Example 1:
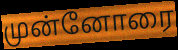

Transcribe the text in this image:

முன்னோரை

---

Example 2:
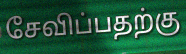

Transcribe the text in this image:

சேவிப்பதற்கு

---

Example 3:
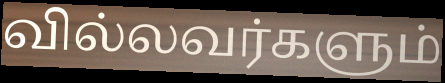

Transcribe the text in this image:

வில்லவர்களும்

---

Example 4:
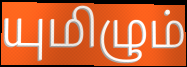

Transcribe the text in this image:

யுமிழும்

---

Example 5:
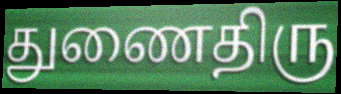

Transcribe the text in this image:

துணைதிரு